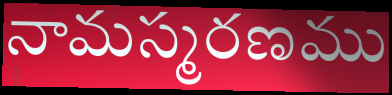
నామస్మరణము